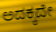
ಅದಕ್ಕದೇ